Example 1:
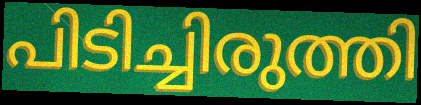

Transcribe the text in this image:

പിടിച്ചിരുത്തി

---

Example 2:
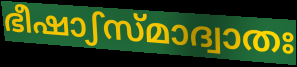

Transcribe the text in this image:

ഭീഷാഽസ്മാദ്വാതഃ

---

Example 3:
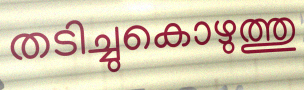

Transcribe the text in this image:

തടിച്ചുകൊഴുത്തു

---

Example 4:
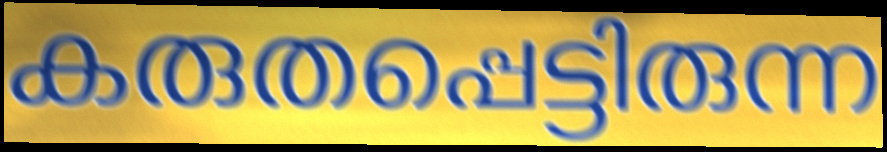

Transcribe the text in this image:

കരുതപ്പെട്ടിരുന്ന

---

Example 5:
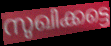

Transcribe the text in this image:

സുഖിക്കട്ടെ